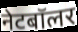
नेटबॉलर